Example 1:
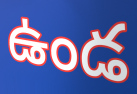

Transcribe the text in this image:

ఉండ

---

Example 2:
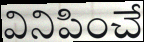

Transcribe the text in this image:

వినిపించే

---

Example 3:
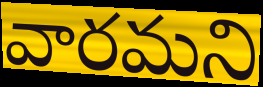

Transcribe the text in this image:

వారమని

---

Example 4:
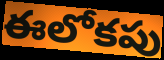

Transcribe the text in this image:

ఈలోకపు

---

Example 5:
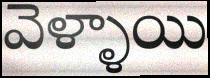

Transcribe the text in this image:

వెళ్ళాయి